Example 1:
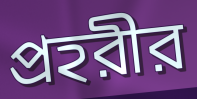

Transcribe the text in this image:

প্রহরীর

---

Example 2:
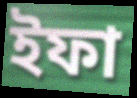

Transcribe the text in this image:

ইফা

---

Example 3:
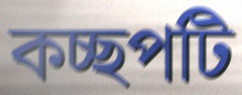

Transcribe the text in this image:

কচ্ছপটি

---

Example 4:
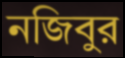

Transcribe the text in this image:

নজিবুর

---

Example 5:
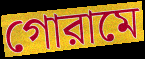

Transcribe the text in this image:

গোরামে